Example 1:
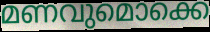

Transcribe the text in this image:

മണവുമൊക്കെ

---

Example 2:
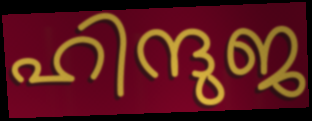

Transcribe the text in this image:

ഹിന്ദുജ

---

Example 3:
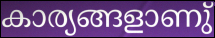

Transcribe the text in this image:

കാര്യങ്ങളാണു്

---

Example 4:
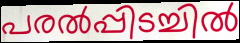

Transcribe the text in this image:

പരൽപ്പിടച്ചിൽ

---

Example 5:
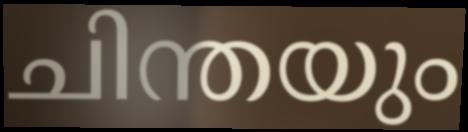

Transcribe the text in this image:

ചിന്തയും